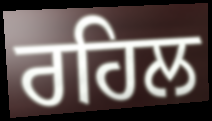
ਰਹਿਲ